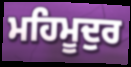
ਮਹਿਮੂਦੁਰ